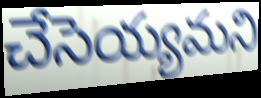
చేసెయ్యమని